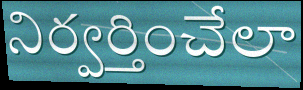
నిర్వర్తించేలా